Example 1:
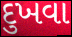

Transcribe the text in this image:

દુખવા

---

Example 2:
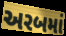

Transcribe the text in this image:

અરબમાં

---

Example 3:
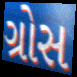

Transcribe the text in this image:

ગ્રોસ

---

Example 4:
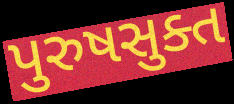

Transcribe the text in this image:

પુરુષસુક્ત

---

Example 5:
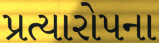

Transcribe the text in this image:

પ્રત્યારોપના